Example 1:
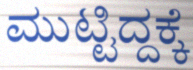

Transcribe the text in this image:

ಮುಟ್ಟಿದ್ದಕ್ಕೆ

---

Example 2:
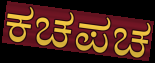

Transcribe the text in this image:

ಕಚಪಚ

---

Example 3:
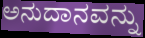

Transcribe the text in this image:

ಅನುದಾನವನ್ನು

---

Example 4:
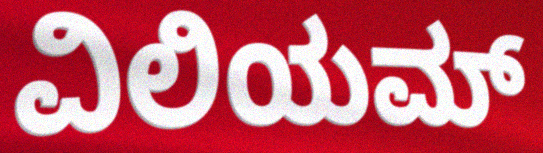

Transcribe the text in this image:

ವಿಲಿಯಮ್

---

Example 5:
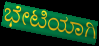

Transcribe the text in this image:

ಭೇಟಿಯಾಗಿ